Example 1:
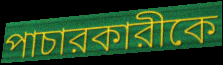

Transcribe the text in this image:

পাচারকারীকে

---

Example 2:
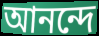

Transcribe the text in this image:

আনন্দে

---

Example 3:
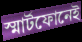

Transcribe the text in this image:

স্মার্টফোনেই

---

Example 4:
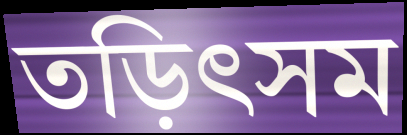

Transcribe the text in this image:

তড়িৎসম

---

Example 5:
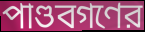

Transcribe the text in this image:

পাণ্ডবগণের